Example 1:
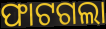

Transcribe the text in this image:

ଫାଟଗଲା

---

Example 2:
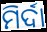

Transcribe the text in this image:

ମିର୍ଦା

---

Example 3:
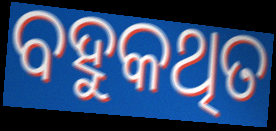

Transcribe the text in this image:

ବହୁକଥିତ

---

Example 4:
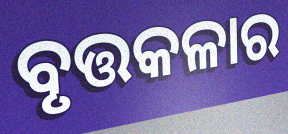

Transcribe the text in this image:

ବୃତ୍ତକଳାର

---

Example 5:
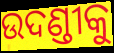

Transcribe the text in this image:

ଉଦଣ୍ଡୀକୁ